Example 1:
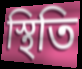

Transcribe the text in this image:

স্থিতি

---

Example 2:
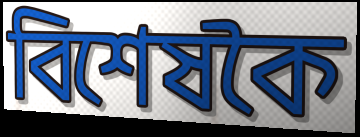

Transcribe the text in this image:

বিশেষকৈ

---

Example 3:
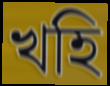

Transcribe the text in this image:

খহি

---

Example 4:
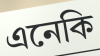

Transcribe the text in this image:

এনেকি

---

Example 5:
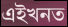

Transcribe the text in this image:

এইখনত